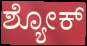
ಶ್ಯೋಕ್